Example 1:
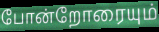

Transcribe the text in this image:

போன்றோரையும்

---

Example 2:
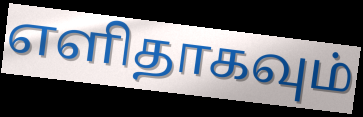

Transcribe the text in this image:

எளிதாகவும்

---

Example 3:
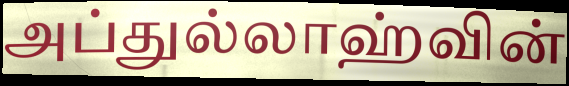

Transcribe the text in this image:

அப்துல்லாஹ்வின்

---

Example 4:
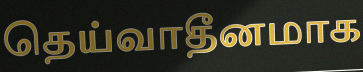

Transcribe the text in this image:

தெய்வாதீனமாக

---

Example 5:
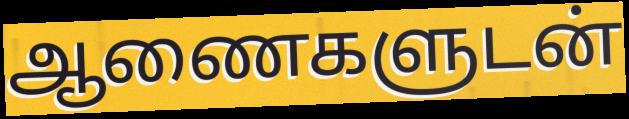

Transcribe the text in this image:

ஆணைகளுடன்